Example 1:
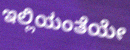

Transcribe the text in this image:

ಇಲ್ಲಿಯಂತೆಯೇ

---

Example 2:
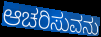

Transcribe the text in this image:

ಆಚರಿಸುವನು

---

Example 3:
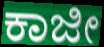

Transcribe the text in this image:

ಕಾಜೀ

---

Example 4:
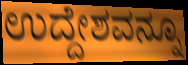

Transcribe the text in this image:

ಉದ್ದೇಶವನ್ನೂ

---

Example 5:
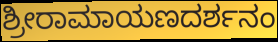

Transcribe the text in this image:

ಶ್ರೀರಾಮಾಯಣದರ್ಶನಂ